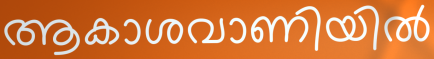
ആകാശവാണിയിൽ